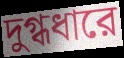
দুগ্ধধারে